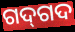
ଗଦ୍‍ଗଦ